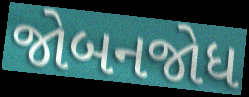
જોબનજોધ